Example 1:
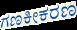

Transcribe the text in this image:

ಗಣಕೀಕರಣ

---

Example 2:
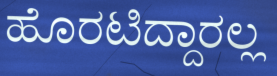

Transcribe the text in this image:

ಹೊರಟಿದ್ದಾರಲ್ಲ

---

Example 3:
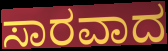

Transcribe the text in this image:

ಸಾರವಾದ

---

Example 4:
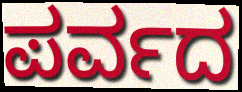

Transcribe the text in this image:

ಪರ್ವದ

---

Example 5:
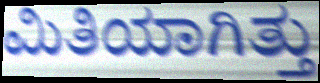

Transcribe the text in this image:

ಮಿತಿಯಾಗಿತ್ತು